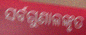
ସର୍ବଗୁଣାଳଙ୍କୃତ